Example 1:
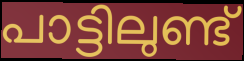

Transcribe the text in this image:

പാട്ടിലുണ്ട്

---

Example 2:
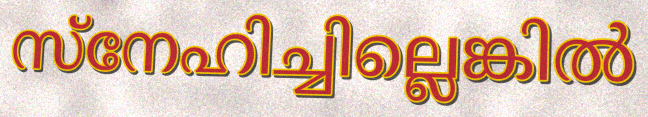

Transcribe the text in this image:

സ്നേഹിച്ചില്ലെങ്കിൽ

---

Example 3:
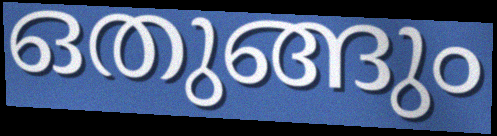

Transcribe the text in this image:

ഒതുങ്ങും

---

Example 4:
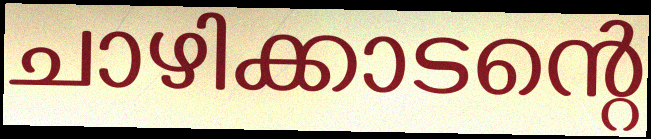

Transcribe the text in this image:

ചാഴിക്കാടന്റെ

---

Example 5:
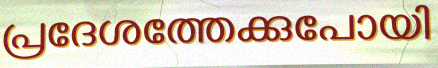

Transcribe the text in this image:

പ്രദേശത്തേക്കുപോയി